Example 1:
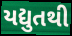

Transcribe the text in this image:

યદ્યુતથી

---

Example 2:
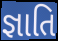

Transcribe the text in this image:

જ્ઞાતિ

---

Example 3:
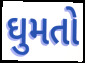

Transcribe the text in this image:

ઘુમતો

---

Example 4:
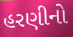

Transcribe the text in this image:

હરણીનો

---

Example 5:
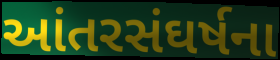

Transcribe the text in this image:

આંતરસંઘર્ષના